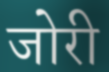
जोरी